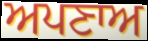
ਅਪਣਾਅ